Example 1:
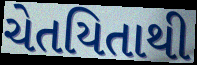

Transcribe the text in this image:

ચેતયિતાથી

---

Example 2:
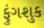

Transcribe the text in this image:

ફુંગશુક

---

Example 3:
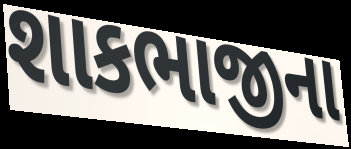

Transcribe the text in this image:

શાકભાજીના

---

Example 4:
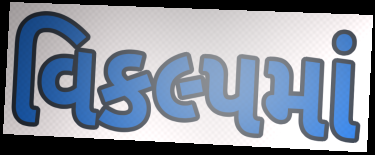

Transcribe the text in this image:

વિકલ્પમાં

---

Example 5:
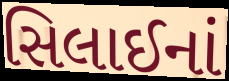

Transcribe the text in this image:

સિલાઈનાં